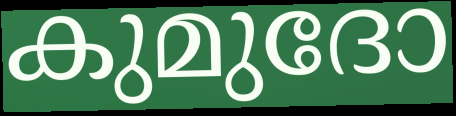
കുമുദോ